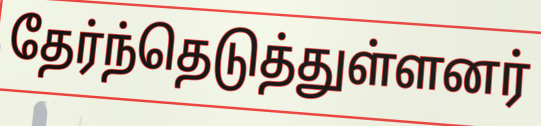
தேர்ந்தெடுத்துள்ளனர்